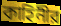
কাহিনীর